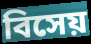
বিসেয়